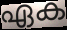
ഏക